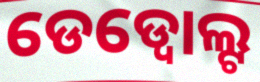
ଡେଡ୍ବୋଲ୍ଟ